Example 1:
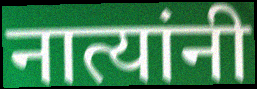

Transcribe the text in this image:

नात्यांनी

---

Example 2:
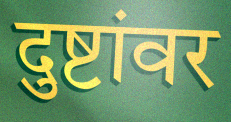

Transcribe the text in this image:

दुष्टांवर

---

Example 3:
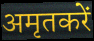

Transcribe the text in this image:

अमृतकरें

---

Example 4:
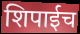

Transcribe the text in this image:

शिपाईच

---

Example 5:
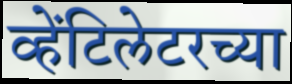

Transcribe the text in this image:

व्हेंटिलेटरच्या